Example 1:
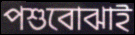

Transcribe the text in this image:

পশুবোঝাই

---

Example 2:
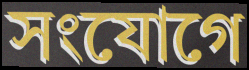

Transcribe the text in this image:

সংযোগে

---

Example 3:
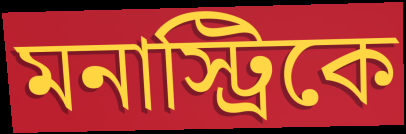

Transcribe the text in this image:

মনাস্ট্রিকে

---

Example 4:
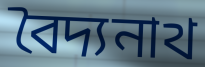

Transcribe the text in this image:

বৈদ্যনাথ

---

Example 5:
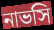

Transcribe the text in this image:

নাভসি